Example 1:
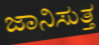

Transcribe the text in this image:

ಜಾನಿಸುತ್ತ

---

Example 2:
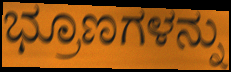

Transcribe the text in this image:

ಭ್ರೂಣಗಳನ್ನು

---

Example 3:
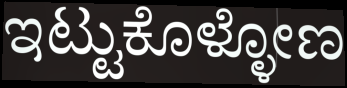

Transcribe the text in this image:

ಇಟ್ಟುಕೊಳ್ಳೋಣ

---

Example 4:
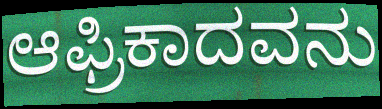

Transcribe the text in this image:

ಆಫ್ರಿಕಾದವನು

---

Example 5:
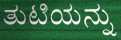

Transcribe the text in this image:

ತುಟಿಯನ್ನು